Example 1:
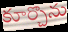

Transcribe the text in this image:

కూర్చొను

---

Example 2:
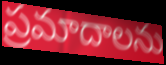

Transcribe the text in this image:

ప్రమాదాలను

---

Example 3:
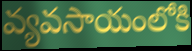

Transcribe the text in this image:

వ్యవసాయంలోకి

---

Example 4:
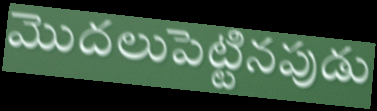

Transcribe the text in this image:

మొదలుపెట్టినపుడు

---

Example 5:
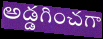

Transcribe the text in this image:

అడ్డగించగా